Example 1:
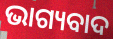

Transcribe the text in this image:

ଭାଗ୍ୟବାଦ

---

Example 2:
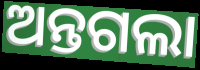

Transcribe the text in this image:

ଅନ୍ତଗଲା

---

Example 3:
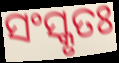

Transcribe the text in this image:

ସଂସ୍କୃତଃ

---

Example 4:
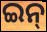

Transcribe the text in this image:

ଇନ୍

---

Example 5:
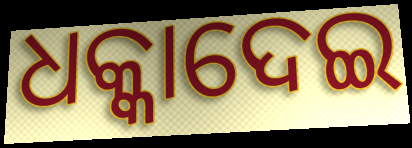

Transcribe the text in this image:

ଧକ୍କାଦେଇ